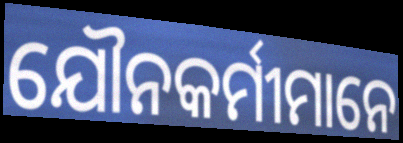
ଯୌନକର୍ମୀମାନେ